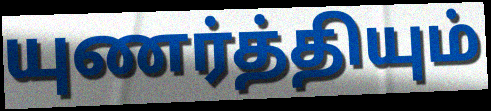
யுணர்த்தியும்